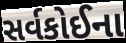
સર્વકોઈના